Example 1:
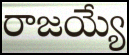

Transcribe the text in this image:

రాజయ్యే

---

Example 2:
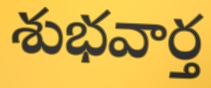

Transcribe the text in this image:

శుభవార్త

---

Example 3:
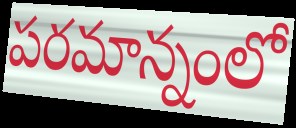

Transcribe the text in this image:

పరమాన్నంలో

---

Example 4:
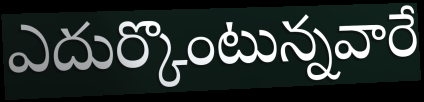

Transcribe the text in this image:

ఎదుర్కొంటున్నవారే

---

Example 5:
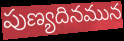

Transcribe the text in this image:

పుణ్యదినమున